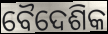
ବୈଦେଶିକ